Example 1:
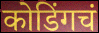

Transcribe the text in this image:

कोडिंगचं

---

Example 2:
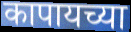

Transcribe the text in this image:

कापायच्या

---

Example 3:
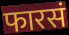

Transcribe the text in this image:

फारसं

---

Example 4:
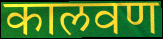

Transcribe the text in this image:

कालवण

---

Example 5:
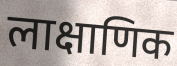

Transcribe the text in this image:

लाक्षाणिक